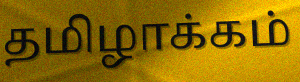
தமிழாக்கம்